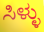
ಸಿಳ್ಳು